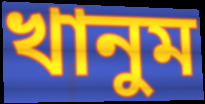
খানুম